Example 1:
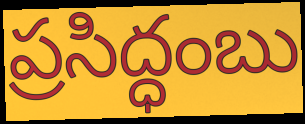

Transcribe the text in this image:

ప్రసిద్ధంబు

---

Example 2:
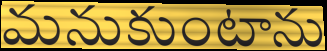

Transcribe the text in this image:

మనుకుంటాను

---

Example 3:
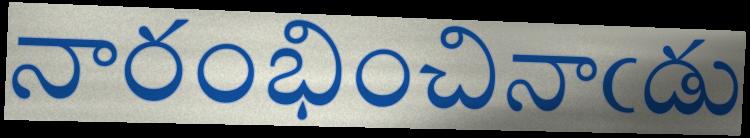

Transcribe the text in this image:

నారంభించినాఁడు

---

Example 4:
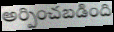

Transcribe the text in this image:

అర్పించబడింది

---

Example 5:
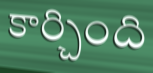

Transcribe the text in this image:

కార్చింది